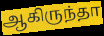
ஆகிருந்தா